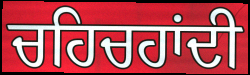
ਚਹਿਚਹਾਂਦੀ